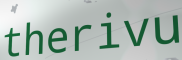
therivu